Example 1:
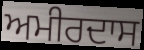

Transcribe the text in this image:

ਅਮੀਰਦਾਸ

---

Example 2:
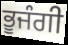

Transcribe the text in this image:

ਭੂਜੰਗੀ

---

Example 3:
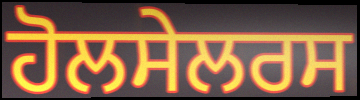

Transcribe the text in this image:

ਹੋਲਸੇਲਰਸ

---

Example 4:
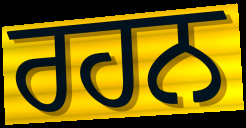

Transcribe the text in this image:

ਰਹਨ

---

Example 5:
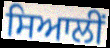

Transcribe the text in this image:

ਸਿਆਲੀਂ